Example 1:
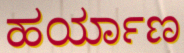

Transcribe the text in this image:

ಹರ್ಯಾಣ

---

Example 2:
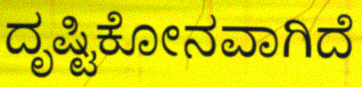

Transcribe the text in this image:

ದೃಷ್ಟಿಕೋನವಾಗಿದೆ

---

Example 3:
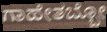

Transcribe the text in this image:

ಗಾಹೇತಬ್ಬೋ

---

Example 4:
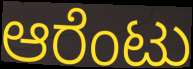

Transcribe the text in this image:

ಆರೆಂಟು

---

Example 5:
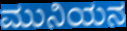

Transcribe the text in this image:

ಮುನಿಯನ